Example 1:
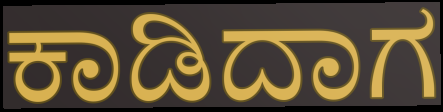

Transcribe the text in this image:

ಕಾಡಿದಾಗ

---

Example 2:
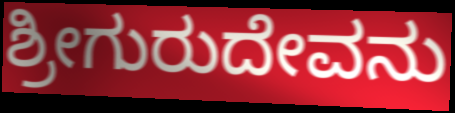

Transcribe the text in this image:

ಶ್ರೀಗುರುದೇವನು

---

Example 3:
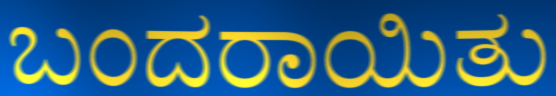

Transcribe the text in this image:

ಬಂದರಾಯಿತು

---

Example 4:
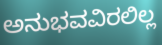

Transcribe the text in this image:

ಅನುಭವವಿರಲಿಲ್ಲ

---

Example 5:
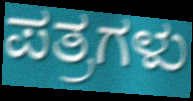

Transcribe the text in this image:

ಪತ್ರಗಳು